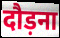
दौड़ना